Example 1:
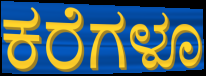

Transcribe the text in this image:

ಕರೆಗಳೂ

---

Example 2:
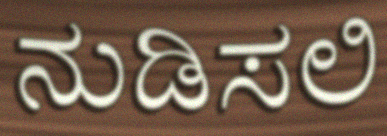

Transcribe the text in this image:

ನುಡಿಸಲಿ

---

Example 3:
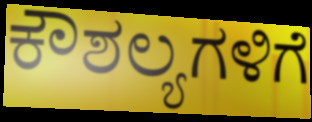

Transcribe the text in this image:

ಕೌಶಲ್ಯಗಳಿಗೆ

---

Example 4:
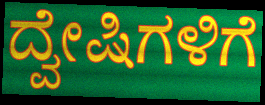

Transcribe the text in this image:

ದ್ವೇಷಿಗಳಿಗೆ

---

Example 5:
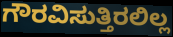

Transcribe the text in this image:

ಗೌರವಿಸುತ್ತಿರಲಿಲ್ಲ